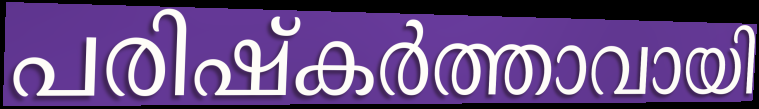
പരിഷ്കർത്താവായി